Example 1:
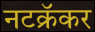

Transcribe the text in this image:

नटक्रॅकर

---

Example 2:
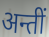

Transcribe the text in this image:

अन्तीं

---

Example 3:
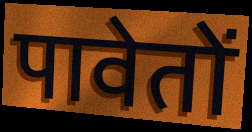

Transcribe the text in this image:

पावेतों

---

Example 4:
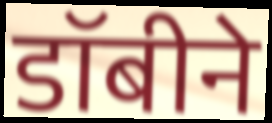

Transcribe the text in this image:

डॉबीने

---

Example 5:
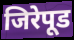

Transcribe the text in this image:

जिरेपूड